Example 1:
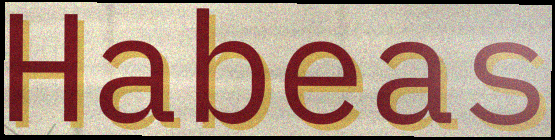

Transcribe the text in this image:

Habeas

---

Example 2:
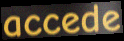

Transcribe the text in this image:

accede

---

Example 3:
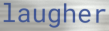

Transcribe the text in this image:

laugher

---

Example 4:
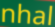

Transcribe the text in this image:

nhal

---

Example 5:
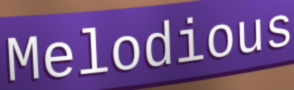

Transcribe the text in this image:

Melodious